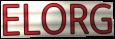
ELORG